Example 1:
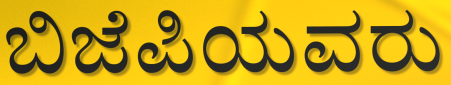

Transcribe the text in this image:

ಬಿಜೆಪಿಯವರು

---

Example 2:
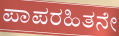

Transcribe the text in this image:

ಪಾಪರಹಿತನೇ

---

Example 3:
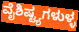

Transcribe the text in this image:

ವೈಶಿಷ್ಟ್ಯಗಳುಳ್ಳ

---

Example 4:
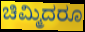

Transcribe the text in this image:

ಚಿಮ್ಮಿದರೂ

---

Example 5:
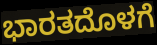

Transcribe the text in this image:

ಭಾರತದೊಳಗೆ